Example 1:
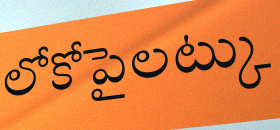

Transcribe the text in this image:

లోకోపైలట్కు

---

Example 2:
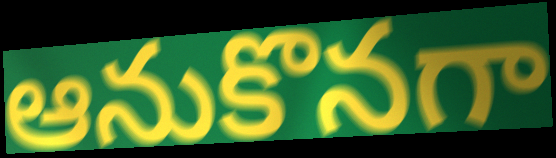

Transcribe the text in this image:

ఆనుకొనగా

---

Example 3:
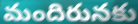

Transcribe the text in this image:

మందిరునకు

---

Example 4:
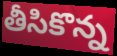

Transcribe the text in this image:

తీసికొన్న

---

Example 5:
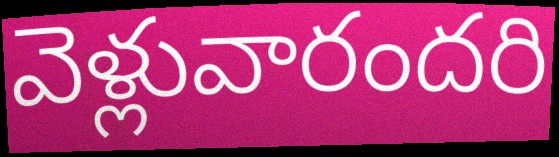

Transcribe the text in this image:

వెళ్లువారందరి